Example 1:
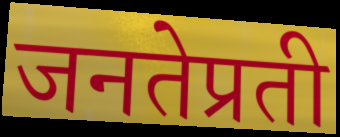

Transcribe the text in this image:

जनतेप्रती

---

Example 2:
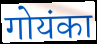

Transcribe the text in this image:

गोयंका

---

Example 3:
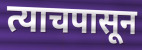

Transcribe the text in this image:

त्याचपासून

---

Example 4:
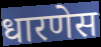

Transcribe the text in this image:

धारणेस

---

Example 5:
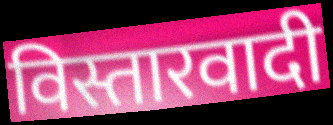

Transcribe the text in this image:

विस्तारवादी